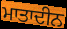
ਮਾਤਾਦੀਨ